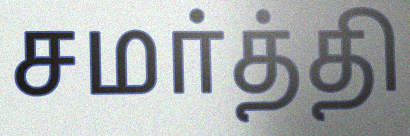
சமர்த்தி